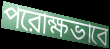
পরোক্ষভাবে